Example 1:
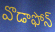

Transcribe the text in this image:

వొడాఫోన్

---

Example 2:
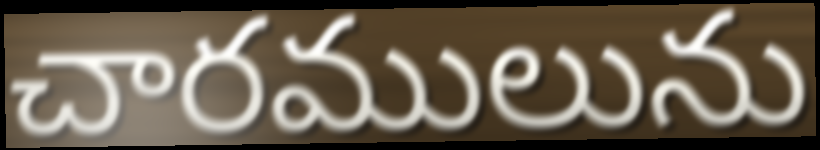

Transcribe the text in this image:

చారములును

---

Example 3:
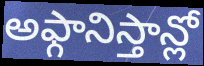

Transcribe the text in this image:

అఫ్గానిస్తాన్లో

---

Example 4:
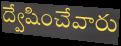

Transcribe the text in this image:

ద్వేషించేవారు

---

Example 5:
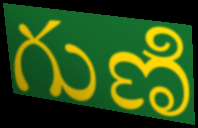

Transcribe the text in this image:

గుణి